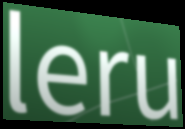
leru